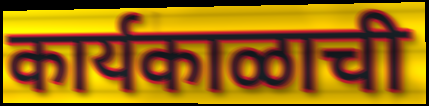
कार्यकाळाची